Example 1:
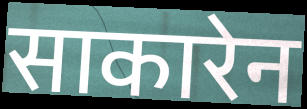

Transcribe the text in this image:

साकारेन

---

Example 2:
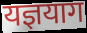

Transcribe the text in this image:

यज्ञयाग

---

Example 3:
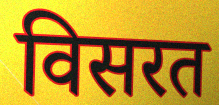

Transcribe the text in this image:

विसरत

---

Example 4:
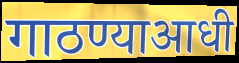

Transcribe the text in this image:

गाठण्याआधी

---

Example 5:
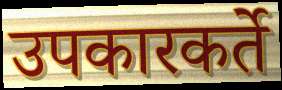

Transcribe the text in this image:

उपकारकर्ते